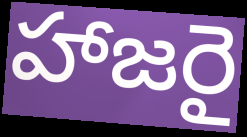
హాజరై